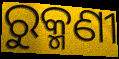
ରୁକ୍ମଣୀ